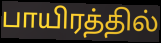
பாயிரத்தில்